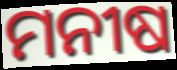
ମନୀଷ